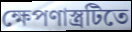
ক্ষেপণাস্ত্রটিতে